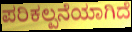
ಪರಿಕಲ್ಪನೆಯಾಗಿದೆ